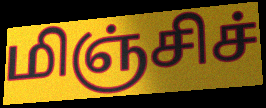
மிஞ்சிச்